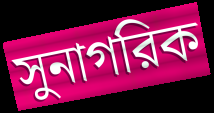
সুনাগরিক